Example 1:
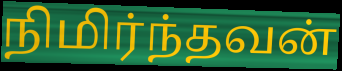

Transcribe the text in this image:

நிமிர்ந்தவன்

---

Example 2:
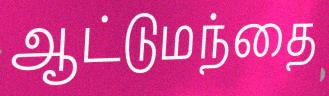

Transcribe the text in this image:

ஆட்டுமந்தை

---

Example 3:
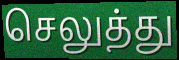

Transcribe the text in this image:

செலுத்து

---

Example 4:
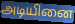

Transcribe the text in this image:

அடியினை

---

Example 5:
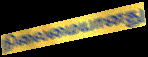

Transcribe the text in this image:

நிலைமையானது